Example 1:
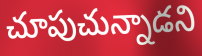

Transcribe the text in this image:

చూపుచున్నాడని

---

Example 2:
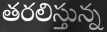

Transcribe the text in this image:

తరలిస్తున్న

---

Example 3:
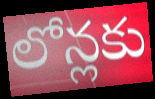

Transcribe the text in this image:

లోన్లకు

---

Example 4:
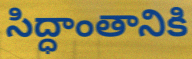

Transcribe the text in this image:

సిద్ధాంతానికి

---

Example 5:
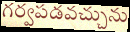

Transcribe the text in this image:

గర్వపడవచ్చును